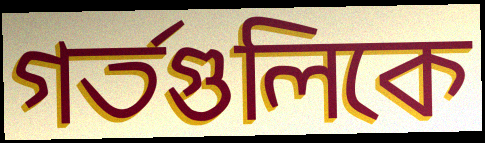
গর্তগুলিকে